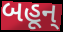
બહૂન્